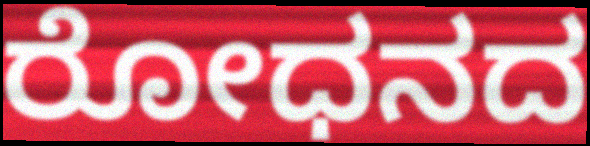
ರೋಧನದ